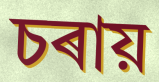
চৰায়